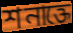
শনাক্তে